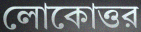
লোকোত্তর